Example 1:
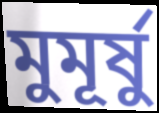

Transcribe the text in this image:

মুমূৰ্ষু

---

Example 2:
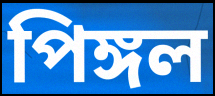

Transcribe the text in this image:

পিঙ্গল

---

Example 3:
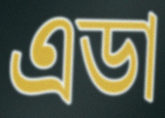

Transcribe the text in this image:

এডা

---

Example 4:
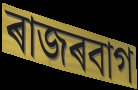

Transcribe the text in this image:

ৰাজৰবাগ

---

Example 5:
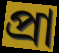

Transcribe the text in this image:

প্ৰা